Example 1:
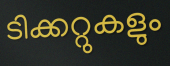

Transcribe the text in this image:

ടിക്കറ്റുകളും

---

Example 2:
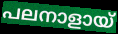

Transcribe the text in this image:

പലനാളായ്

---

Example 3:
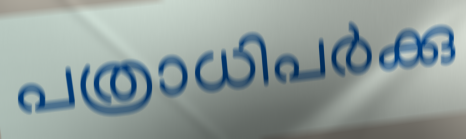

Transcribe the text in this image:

പത്രാധിപർക്കു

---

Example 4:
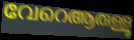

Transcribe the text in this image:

വേറെആരുള്ളൂ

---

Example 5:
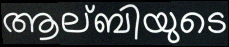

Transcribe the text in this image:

ആല്ബിയുടെ